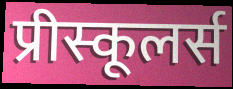
प्रीस्कूलर्स